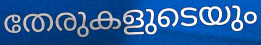
തേരുകളുടെയും